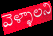
వెళ్ళాలని